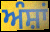
ਅੰਸ਼ਾਂ